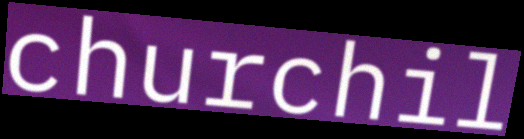
churchil